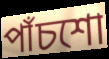
পাঁচশো